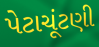
પેટાચૂંટણી